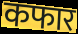
कफार